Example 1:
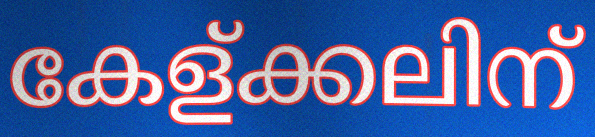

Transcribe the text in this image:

കേള്ക്കലിന്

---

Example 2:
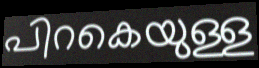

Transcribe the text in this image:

പിറകെയുള്ള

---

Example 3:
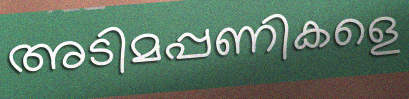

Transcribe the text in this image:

അടിമപ്പണികളെ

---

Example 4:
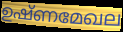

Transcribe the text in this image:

ഉഷ്ണമേഖല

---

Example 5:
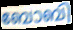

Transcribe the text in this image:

ബോബി